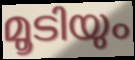
മൂടിയും